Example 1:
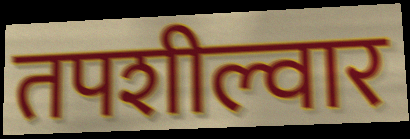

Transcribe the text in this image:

तपशील्वार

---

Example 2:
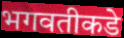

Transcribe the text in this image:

भगवतीकडे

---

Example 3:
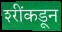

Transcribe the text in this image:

श्रींकडून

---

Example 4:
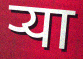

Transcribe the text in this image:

ऱ्या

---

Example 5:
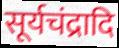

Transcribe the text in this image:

सूर्यचंद्रादि